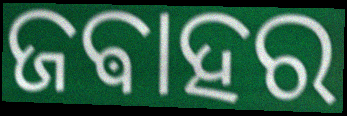
ଜଵାହର